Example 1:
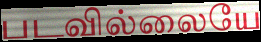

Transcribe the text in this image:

படவில்லையே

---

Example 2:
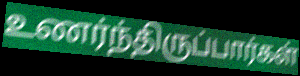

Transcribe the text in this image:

உணர்ந்திருப்பார்கள்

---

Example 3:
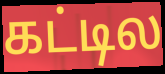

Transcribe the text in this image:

கட்டில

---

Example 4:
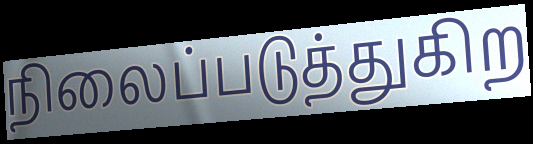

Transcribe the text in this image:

நிலைப்படுத்துகிற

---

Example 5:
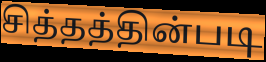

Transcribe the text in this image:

சித்தத்தின்படி